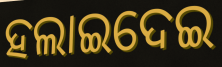
ହଲାଇଦେଇ